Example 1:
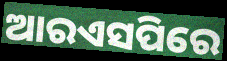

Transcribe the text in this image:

ଆରଏସପିରେ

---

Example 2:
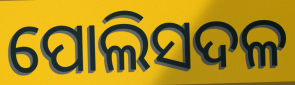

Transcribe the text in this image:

ପୋଲିସଦଳ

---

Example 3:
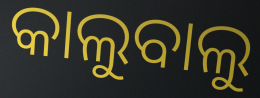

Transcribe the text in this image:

କାଲୁବାଲୁ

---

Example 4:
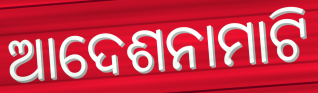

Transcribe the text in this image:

ଆଦେଶନାମାଟି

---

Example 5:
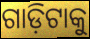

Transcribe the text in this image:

ଗାଡ଼ିଟାକୁ